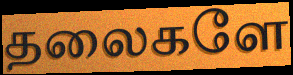
தலைகளே